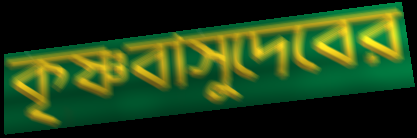
কৃষ্ণবাসুদেবের